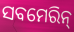
ସବମେରିନ୍